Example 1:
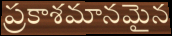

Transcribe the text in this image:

ప్రకాశమానమైన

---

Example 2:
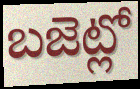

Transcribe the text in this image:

బజెట్లో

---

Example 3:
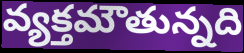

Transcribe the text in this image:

వ్యక్తమౌతున్నది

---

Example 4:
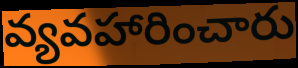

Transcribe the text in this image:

వ్యవహారించారు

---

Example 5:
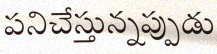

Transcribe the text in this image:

పనిచేస్తున్నప్పుడు